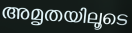
അമൃതയിലൂടെ